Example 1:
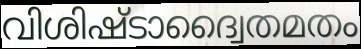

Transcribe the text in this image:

വിശിഷ്ടാദ്വൈതമതം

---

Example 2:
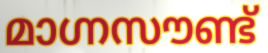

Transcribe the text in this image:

മാഗ്നസൗണ്ട്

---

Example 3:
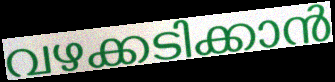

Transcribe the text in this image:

വഴക്കടിക്കാൻ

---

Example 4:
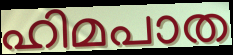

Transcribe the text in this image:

ഹിമപാത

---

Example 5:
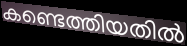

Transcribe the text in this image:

കണ്ടെത്തിയതിൽ